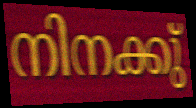
നിനക്കു്